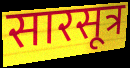
सारसूत्र